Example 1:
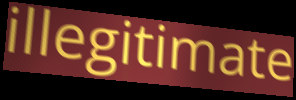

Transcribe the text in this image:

illegitimate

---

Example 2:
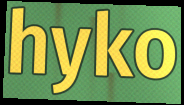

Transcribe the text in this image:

hyko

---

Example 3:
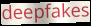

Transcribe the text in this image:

deepfakes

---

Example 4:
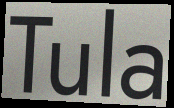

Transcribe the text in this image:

Tula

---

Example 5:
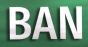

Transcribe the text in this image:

BAN